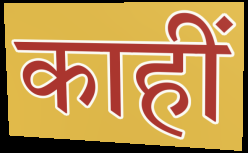
काहीं